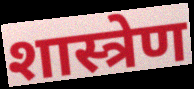
शास्त्रेण